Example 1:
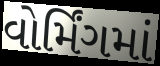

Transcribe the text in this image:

વોર્મિંગમાં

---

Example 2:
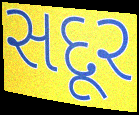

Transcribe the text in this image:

સદૂર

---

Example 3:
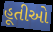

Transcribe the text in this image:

હૂતીઓ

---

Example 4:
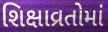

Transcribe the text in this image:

શિક્ષાવ્રતોમાં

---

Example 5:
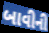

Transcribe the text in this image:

બાવીની